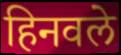
हिनवले